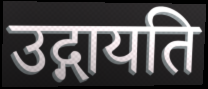
उद्गायति